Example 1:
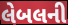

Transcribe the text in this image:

લેબલની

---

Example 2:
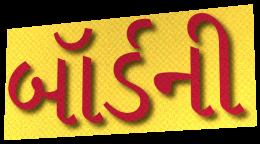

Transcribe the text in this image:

બૉર્ડની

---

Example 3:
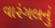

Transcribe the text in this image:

વારંગલનું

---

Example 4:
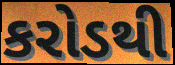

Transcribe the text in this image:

કરોડથી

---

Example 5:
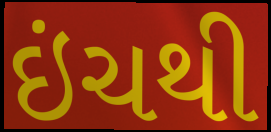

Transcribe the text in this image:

ઇંચથી